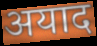
अयाद